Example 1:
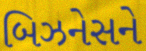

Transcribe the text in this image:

બિઝનેસને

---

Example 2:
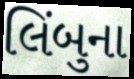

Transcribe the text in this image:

લિંબુના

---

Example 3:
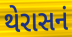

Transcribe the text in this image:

થેરાસનં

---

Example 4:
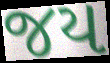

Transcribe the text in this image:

જય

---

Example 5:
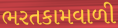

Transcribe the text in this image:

ભરતકામવાળી